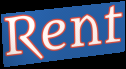
Rent